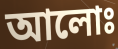
আলোঃ